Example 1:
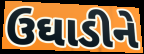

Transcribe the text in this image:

ઉઘાડીને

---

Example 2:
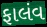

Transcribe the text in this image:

ફાલંવ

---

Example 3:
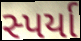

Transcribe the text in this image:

સ્પર્યા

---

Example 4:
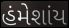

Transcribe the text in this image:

હંમેશાંય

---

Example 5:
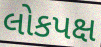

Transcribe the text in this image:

લોકપક્ષ